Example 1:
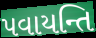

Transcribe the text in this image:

પવાયન્તિ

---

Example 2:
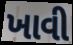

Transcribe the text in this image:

ખાવી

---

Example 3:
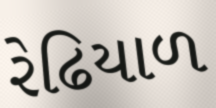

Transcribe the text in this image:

રેઢિયાળ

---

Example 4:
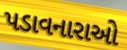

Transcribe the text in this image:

પડાવનારાઓ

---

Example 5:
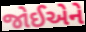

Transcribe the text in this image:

જોઈએને